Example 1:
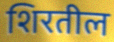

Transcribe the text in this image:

शिरतील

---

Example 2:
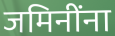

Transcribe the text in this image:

जमिनींना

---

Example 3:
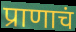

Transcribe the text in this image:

प्राणाचं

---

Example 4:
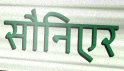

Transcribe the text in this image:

सौनिएर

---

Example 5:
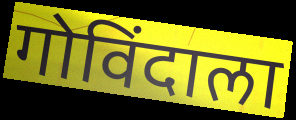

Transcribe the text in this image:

गोविंदाला